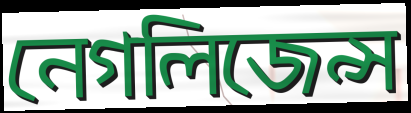
নেগলিজেন্স